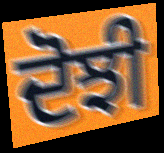
ਦੋਝੀ